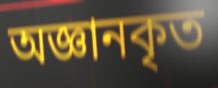
অজ্ঞানকৃত